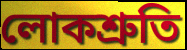
লোকশ্রুতি